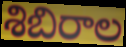
శిబిరాల